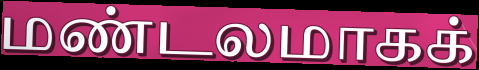
மண்டலமாகக்